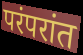
परंपरांत